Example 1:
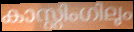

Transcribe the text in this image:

കാസ്റ്റിംഗിലും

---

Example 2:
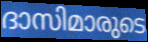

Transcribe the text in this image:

ദാസിമാരുടെ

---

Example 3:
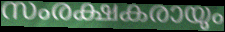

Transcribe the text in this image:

സംരക്ഷകരായും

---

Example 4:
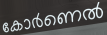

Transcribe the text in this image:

കോർണെൽ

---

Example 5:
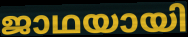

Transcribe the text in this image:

ജാഥയായി